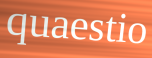
quaestio